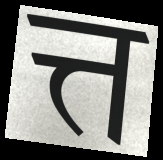
त्त